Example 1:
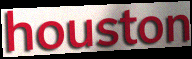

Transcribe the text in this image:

houston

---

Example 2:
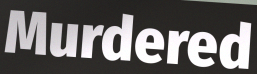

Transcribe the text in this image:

Murdered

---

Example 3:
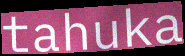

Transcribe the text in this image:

tahuka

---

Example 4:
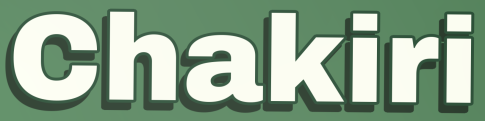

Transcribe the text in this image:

Chakiri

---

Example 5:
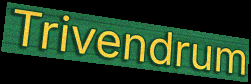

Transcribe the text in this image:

Trivendrum